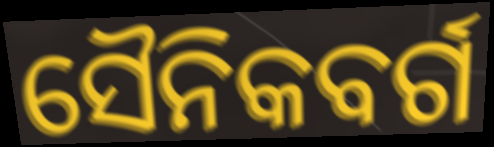
ସୈନିକବର୍ଗ